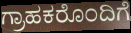
ಗ್ರಾಹಕರೊಂದಿಗೆ